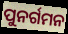
ପୁନର୍ଗମନ